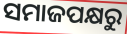
ସମାଜପକ୍ଷରୁ